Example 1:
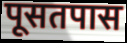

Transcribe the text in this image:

पूसतपास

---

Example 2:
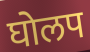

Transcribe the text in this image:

घोलप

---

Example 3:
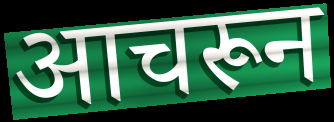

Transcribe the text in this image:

आचरून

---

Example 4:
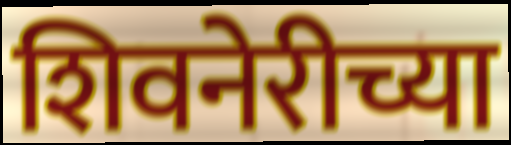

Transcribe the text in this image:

शिवनेरीच्या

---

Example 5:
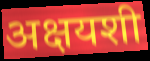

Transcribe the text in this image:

अक्षयशी